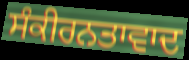
ਸੰਕੀਰਨਤਾਵਾਦ